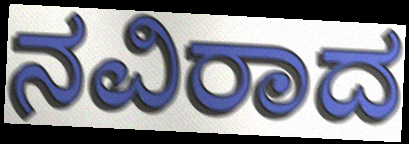
ನವಿರಾದ